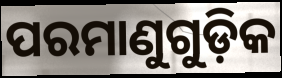
ପରମାଣୁଗୁଡ଼ିକ